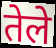
तेले